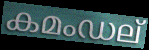
കമംഡല്